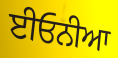
ਈਓਨੀਆ